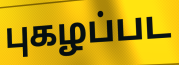
புகழப்பட